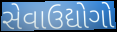
સેવાઉદ્યોગો